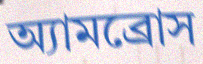
অ্যামব্রোস